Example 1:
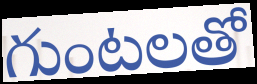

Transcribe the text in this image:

గుంటలతో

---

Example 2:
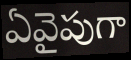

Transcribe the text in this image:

ఏవైపుగా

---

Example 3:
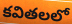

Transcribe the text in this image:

కవితలలో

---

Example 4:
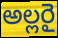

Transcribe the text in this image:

అల్లరై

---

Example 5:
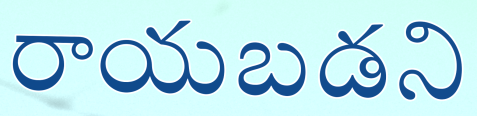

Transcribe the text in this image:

రాయబడని